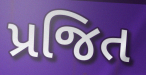
પ્રજિત